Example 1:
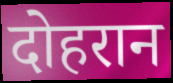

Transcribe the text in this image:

दोहरान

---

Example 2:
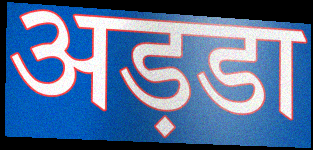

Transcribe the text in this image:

अड़डा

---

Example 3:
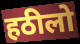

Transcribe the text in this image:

हठीलो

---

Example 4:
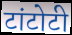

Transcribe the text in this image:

टांटोटी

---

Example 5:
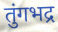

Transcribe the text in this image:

तुंगभद्र